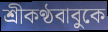
শ্রীকণ্ঠবাবুকে